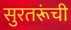
सुरतरूंची